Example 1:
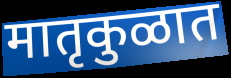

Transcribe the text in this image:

मातृकुळात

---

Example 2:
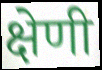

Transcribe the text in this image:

क्षेणी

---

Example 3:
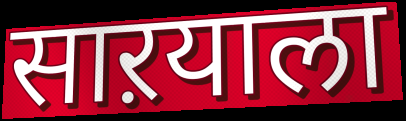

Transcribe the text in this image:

साऱयाला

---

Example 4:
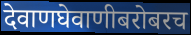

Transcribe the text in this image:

देवाणघेवाणीबरोबरच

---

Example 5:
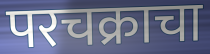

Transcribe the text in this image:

परचक्राचा